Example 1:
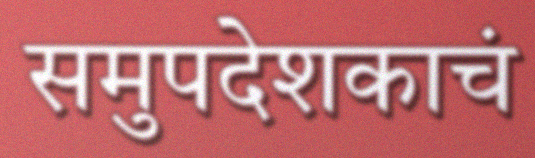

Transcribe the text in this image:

समुपदेशकाचं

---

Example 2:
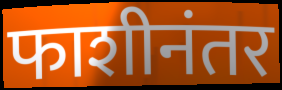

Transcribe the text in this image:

फाशीनंतर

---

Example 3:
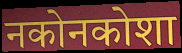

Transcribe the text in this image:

नकोनकोशा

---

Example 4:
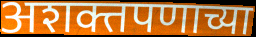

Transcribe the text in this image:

अशक्तपणाच्या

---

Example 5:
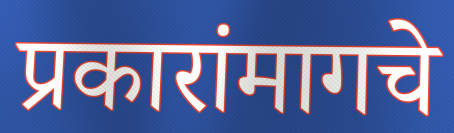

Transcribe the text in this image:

प्रकारांमागचे